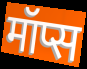
मॉप्स